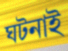
ঘটনাই